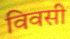
विवसी